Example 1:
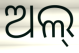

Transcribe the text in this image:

ଅଲ୍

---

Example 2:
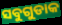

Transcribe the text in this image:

ସବୁଗୁଡାକ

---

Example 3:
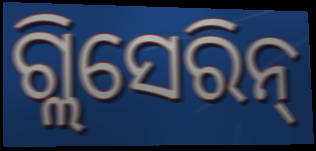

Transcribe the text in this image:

ଗ୍ଲିସେରିନ୍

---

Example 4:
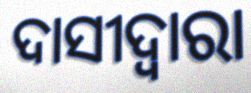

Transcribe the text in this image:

ଦାସୀଦ୍ୱାରା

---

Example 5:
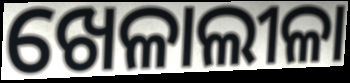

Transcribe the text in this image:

ଖେଳାଲୀଳା